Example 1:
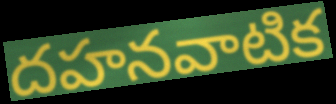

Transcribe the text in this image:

దహనవాటిక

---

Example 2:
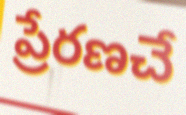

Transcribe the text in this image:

ప్రేరణచే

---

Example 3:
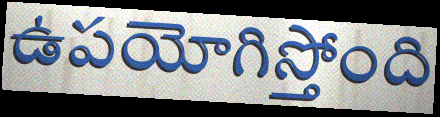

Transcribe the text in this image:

ఉపయోగిస్తోంది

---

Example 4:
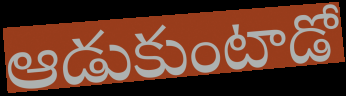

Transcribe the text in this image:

ఆడుకుంటాడో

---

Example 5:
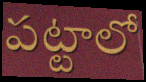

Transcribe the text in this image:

పట్టాలో